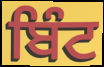
ਬਿੰਟ